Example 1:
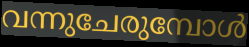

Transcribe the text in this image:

വന്നുചേരുമ്പോൾ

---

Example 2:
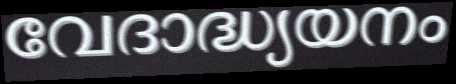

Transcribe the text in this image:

വേദാദ്ധ്യയനം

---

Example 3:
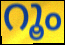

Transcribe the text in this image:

റൂം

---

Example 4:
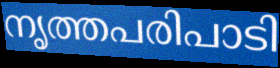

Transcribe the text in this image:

നൃത്തപരിപാടി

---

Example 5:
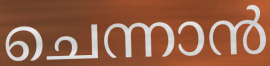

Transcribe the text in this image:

ചെന്നാൻ